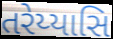
તરેય્યાસિ